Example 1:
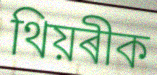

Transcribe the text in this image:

থিয়ৰীক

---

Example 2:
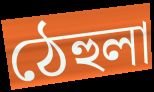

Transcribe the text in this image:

ঠেহুলা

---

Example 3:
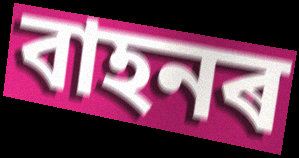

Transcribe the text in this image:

বাহনৰ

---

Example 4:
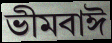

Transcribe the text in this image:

ভীমবাঈ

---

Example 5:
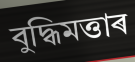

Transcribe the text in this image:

বুদ্ধিমত্তাৰ